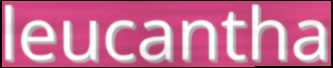
leucantha